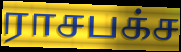
ராசபக்ச